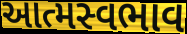
આત્મસ્વભાવ